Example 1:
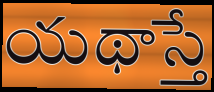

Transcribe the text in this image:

యథాస్తే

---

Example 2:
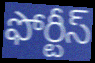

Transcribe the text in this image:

ఫోర్టీస్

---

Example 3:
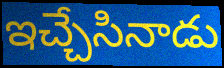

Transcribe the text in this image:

ఇచ్చేసినాడు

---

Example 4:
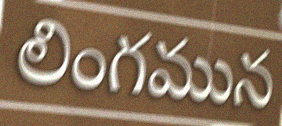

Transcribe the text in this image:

లింగమున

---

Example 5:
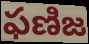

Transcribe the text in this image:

ఫణిజ